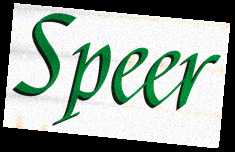
Speer